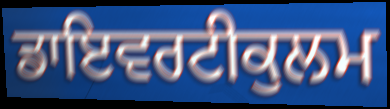
ਡਾਇਵਰਟੀਕੁਲਮ